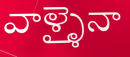
వాళ్ళైనా